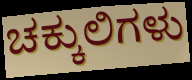
ಚಕ್ಕುಲಿಗಳು